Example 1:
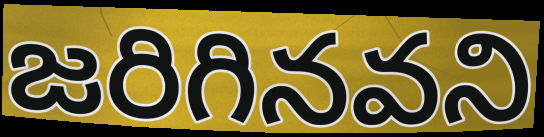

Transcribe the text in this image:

జరిగినవని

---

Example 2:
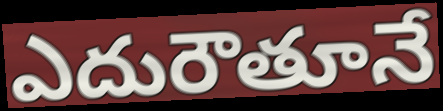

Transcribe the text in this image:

ఎదురౌతూనే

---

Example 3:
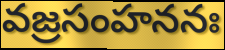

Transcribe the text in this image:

వజ్రసంహననః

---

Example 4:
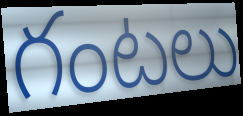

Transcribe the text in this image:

గంటలు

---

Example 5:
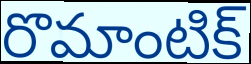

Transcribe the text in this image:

రొమాంటిక్